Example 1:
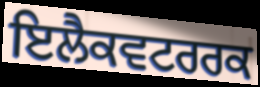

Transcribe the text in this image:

ਇਲੈਕਵਟਰਰਕ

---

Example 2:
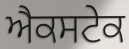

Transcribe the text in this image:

ਐਕਸਟੇਕ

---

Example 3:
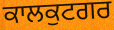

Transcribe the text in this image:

ਕਾਲਕੁਟਗਰ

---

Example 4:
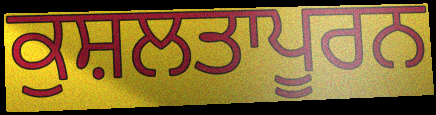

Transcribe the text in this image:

ਕੁਸ਼ਲਤਾਪੂਰਨ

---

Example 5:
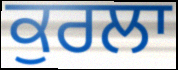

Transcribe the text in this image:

ਕੁਰਲਾ